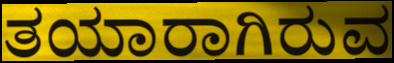
ತಯಾರಾಗಿರುವ